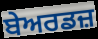
ਬੇਅਰਡਜ਼